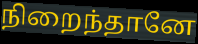
நிறைந்தானே